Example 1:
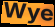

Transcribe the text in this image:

Wye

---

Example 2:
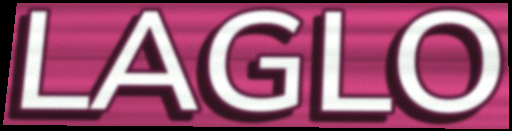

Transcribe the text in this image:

LAGLO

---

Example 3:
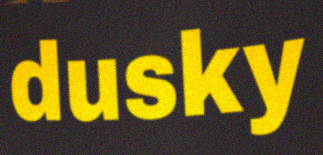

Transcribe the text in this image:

dusky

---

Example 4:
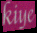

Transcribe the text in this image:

kiye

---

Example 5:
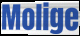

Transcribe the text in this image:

Molige